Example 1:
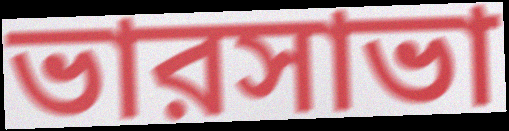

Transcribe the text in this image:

ভারসাভা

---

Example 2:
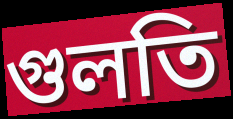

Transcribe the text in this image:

গুলতি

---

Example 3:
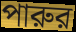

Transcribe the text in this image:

পারুর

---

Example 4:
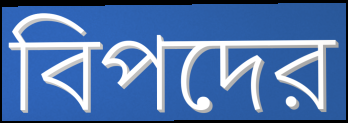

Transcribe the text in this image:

বিপদের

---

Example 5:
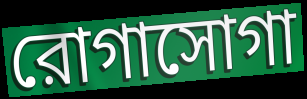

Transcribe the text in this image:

রোগাসোগা